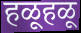
हळूहळू